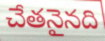
చేతనైనది